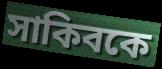
সাকিবকে